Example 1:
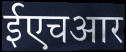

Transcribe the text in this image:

ईएचआर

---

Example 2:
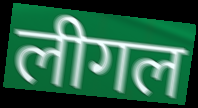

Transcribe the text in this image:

लीगल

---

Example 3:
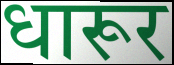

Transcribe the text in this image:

धारूर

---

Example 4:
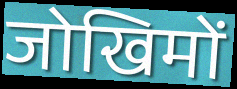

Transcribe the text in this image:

जोखिमों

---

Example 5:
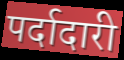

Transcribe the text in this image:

पर्दादारी